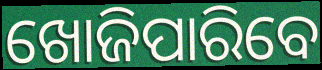
ଖୋଜିପାରିବେ